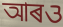
আৰও